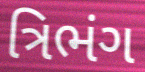
ત્રિભંગ